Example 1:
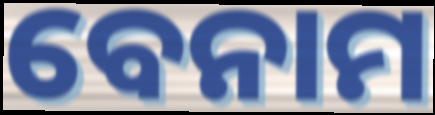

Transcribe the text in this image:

ବେନାମ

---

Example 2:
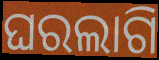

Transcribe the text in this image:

ଘରଲାଗି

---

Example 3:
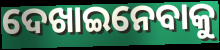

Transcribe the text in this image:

ଦେଖାଇନେବାକୁ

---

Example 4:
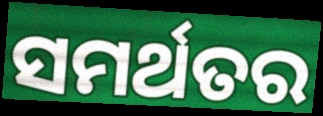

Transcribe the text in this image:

ସମର୍ଥତର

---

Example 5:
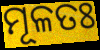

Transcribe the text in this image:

ମୂଳତଃ